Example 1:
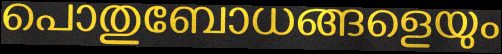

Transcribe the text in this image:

പൊതുബോധങ്ങളെയും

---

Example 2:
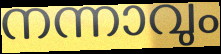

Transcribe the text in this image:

നന്നാവും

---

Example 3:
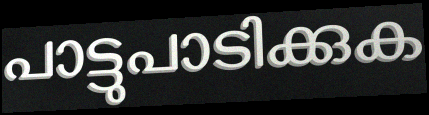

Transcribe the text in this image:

പാട്ടുപാടിക്കുക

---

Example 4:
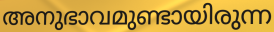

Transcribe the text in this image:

അനുഭാവമുണ്ടായിരുന്ന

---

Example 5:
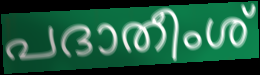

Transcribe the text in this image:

പദാതീംശ്